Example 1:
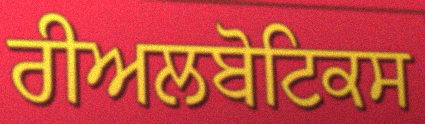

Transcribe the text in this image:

ਰੀਅਲਬੋਟਿਕਸ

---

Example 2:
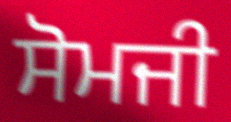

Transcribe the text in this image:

ਸੋਮਜੀ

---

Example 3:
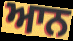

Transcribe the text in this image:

ਆਨ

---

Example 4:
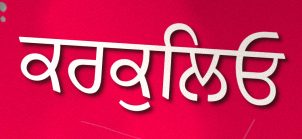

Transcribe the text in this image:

ਕਰਕੁਲਿਓ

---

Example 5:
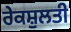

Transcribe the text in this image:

ਰੇਕਸ਼ੁਲਤੀ